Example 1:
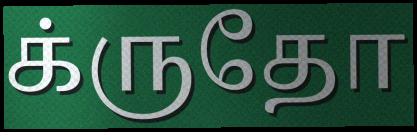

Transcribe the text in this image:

க்ருதோ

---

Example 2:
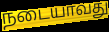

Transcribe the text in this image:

நடையாவது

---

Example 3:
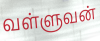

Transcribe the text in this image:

வள்ளுவன்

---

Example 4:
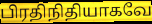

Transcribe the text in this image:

பிரதிநிதியாகவே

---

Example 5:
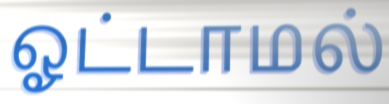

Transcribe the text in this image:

ஓட்டாமல்